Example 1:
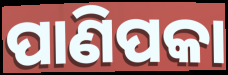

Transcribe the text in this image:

ପାଣିପକା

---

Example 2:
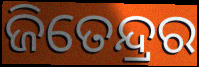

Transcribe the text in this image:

ଜିତେନ୍ଦ୍ରର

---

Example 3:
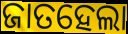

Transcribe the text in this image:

ଜାତହେଲା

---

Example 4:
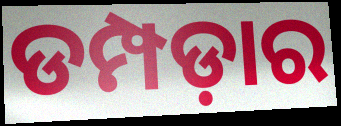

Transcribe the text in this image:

ଡମ୍ପଡ଼ାର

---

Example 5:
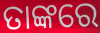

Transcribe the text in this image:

ତାଙ୍କରେ